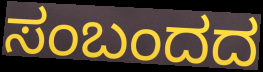
ಸಂಬಂದದ